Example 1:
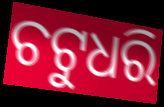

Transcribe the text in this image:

ଚଟୁଧରି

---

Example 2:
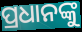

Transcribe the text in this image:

ପ୍ରଧାନଙ୍କୁ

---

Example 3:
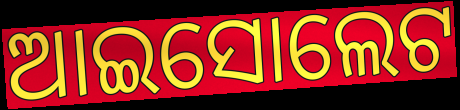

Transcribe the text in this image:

ଆଇସୋଲେଟ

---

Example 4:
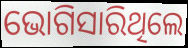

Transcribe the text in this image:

ଭୋଗିସାରିଥିଲେ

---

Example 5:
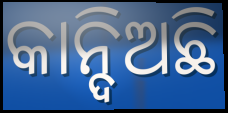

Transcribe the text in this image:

କାନ୍ଦିଅଛି